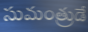
సుమంత్రుడే